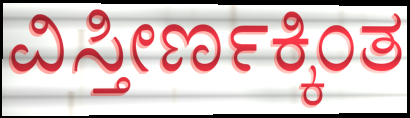
ವಿಸ್ತೀರ್ಣಕ್ಕಿಂತ